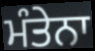
ਮੰਤੇਨਾ